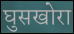
घुसखोरा